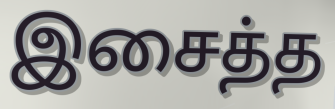
இசைத்த